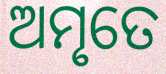
ଅମୃତେ